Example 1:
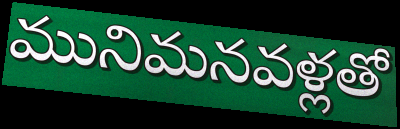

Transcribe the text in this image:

మునిమనవళ్లతో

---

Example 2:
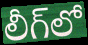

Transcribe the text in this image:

లీగ్‌లో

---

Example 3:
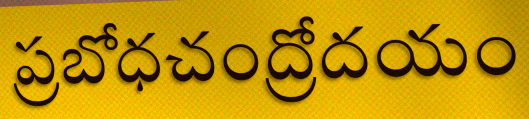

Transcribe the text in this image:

ప్రబోధచంద్రోదయం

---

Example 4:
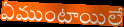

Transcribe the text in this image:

ఏముంటాయిలే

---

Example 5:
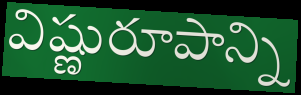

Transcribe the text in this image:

విష్ణురూపాన్ని